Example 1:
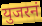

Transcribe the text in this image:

युजरनं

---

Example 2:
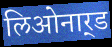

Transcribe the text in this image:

लिओनार्ड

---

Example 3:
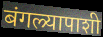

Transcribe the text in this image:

बंगल्यापाशी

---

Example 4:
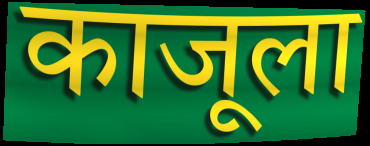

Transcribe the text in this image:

काजूला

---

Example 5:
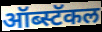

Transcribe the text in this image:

ऑब्स्टॅकल